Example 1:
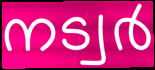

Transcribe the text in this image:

നട്വർ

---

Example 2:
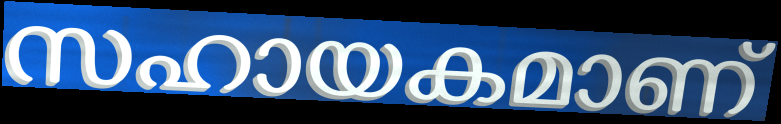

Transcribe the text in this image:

സഹായകമാണ്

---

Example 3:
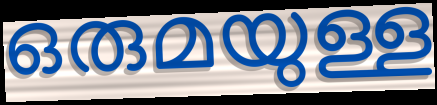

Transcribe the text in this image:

ഒരുമയുള്ള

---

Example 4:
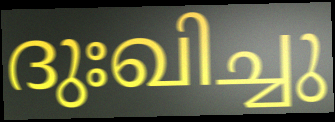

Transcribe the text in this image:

ദുഃഖിച്ചു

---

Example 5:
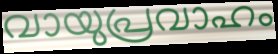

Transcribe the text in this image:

വായുപ്രവാഹം